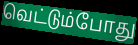
வெட்டும்போது